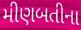
મીણબતીના